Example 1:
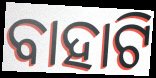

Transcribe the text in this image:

ବାହାଟି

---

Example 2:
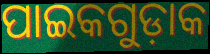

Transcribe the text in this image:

ପାଇକଗୁଡ଼ାକ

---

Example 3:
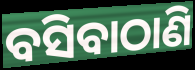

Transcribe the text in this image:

ବସିବାଠାଣି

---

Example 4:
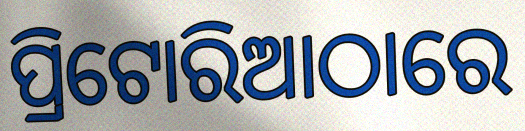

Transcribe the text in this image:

ପ୍ରିଟୋରିଆଠାରେ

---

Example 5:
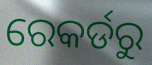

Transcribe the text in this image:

ରେକର୍ଡରୁ